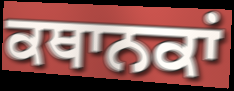
ਕਥਾਨਕਾਂ